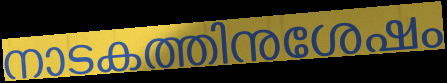
നാടകത്തിനുശേഷം